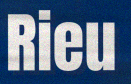
Rieu